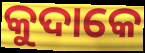
କୁଦାକେ